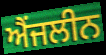
ਐਂਜਲੀਨ